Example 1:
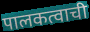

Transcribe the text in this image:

पालकत्वाची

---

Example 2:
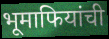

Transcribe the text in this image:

भूमाफियांची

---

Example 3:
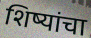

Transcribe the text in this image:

शिष्यांचा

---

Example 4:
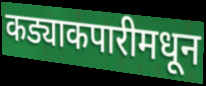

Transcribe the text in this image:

कड्याकपारीमधून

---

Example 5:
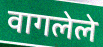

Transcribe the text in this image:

वागलेले